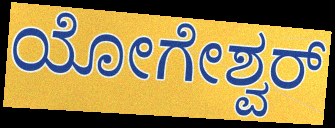
ಯೋಗೇಶ್ವರ್